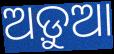
ଅଡ଼ୁଆ